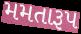
મમતારૂપ